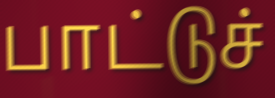
பாட்டுச்